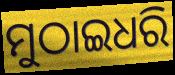
ମୁଠାଇଧରି